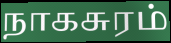
நாகசுரம்